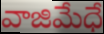
వాజిమేధే